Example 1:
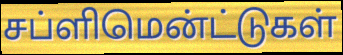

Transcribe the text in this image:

சப்ளிமென்ட்டுகள்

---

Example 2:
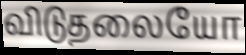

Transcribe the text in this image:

விடுதலையோ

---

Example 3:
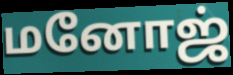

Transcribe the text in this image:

மனோஜ்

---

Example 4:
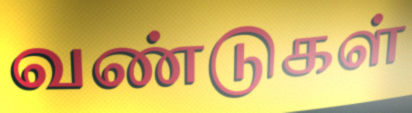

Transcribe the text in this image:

வண்டுகள்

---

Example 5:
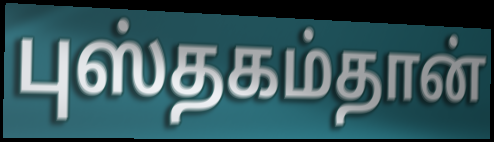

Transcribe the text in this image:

புஸ்தகம்தான்